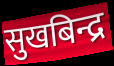
सुखबिन्द्र